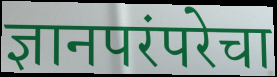
ज्ञानपरंपरेचा